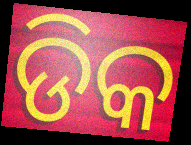
ଡିକ